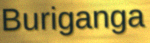
Buriganga